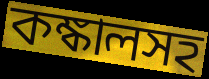
কঙ্কালসহ